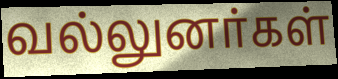
வல்லுனர்கள்